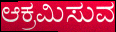
ಆಕ್ರಮಿಸುವ